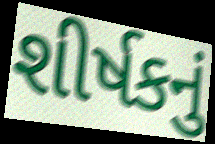
શીર્ષકનું